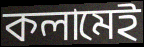
কলামেই